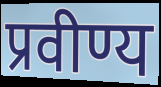
प्रवीण्य